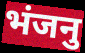
भंजनु